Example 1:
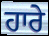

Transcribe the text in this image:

ਹਾਰੇ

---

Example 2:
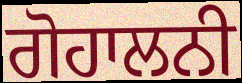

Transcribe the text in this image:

ਗੋਹਾਲਨੀ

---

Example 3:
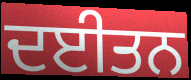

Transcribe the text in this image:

ਦਈਤਨ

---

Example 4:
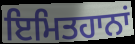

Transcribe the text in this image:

ਇਮਿਤਹਾਨਾਂ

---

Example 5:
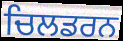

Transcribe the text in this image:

ਚਿਲਡਰਨ